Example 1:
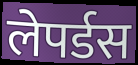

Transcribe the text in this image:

लेपर्डस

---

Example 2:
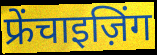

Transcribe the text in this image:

फ्रेंचाइज़िंग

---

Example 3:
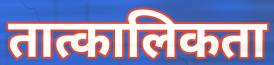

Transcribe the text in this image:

तात्कालिकता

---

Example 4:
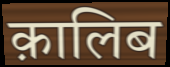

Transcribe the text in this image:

क़ालिब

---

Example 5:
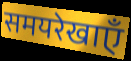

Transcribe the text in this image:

समयरेखाएँ